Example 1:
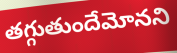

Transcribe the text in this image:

తగ్గుతుందేమోనని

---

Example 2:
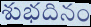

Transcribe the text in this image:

శుభదినం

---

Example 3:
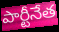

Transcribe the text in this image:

పార్టీనేత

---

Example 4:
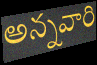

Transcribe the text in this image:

అన్నవారి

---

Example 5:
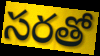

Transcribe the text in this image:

సరతో